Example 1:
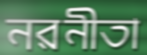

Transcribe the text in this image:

নৱনীতা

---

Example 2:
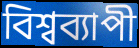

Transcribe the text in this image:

বিশ্বব্যাপী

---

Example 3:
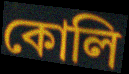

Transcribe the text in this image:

কোলি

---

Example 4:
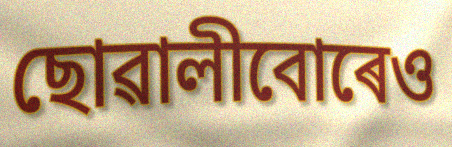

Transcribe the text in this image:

ছোৱালীবোৰেও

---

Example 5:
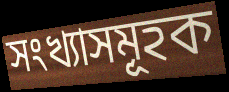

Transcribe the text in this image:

সংখ্যাসমূহক